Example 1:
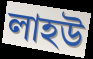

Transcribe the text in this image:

লাহউ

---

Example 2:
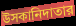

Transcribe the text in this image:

উসকানিদাতার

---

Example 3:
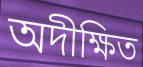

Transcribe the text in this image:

অদীক্ষিত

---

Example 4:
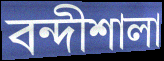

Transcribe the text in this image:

বন্দীশালা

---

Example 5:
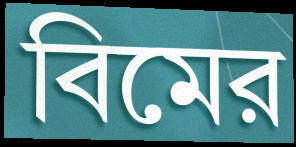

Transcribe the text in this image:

বিমের